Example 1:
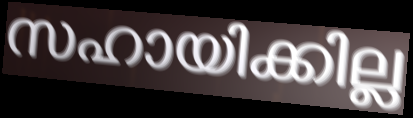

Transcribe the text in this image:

സഹായിക്കില്ല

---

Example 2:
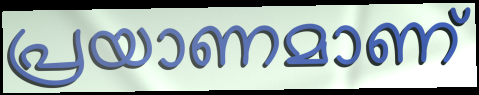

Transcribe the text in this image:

പ്രയാണമാണ്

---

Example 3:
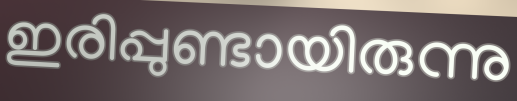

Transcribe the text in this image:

ഇരിപ്പുണ്ടായിരുന്നു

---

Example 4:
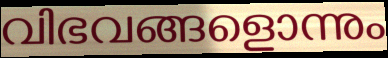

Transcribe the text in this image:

വിഭവങ്ങളൊന്നും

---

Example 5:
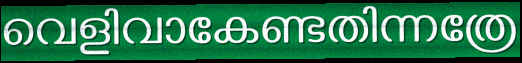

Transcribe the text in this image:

വെളിവാകേണ്ടതിന്നത്രേ